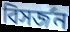
বিসৰ্জন